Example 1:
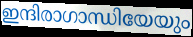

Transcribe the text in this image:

ഇന്ദിരാഗാന്ധിയേയും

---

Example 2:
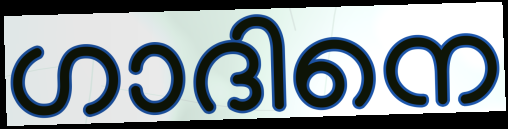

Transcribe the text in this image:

ഗാദിനെ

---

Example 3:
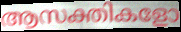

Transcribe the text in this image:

ആസക്തികളോ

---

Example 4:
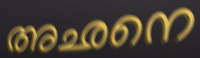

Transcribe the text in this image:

അഛനെ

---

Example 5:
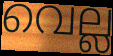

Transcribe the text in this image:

വെല്ല